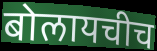
बोलायचीच